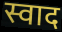
स्वाद